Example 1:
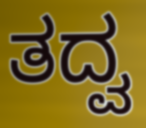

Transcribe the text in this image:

ತದ್ವ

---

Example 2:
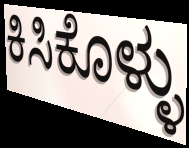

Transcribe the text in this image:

ಕಿಸಿಕೊಳ್ಳು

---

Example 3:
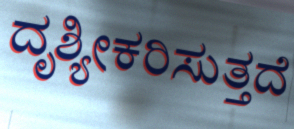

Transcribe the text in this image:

ದೃಶ್ಯೀಕರಿಸುತ್ತದೆ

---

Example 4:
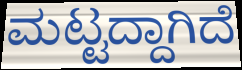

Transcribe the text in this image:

ಮಟ್ಟದ್ದಾಗಿದೆ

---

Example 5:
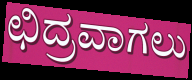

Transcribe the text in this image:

ಛಿದ್ರವಾಗಲು